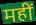
महीं